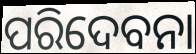
ପରିଦେବନା